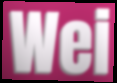
Wei